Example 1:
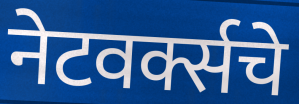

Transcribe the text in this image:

नेटवर्क्सचे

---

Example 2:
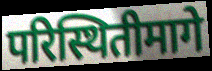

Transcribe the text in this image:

परिस्थितीमागे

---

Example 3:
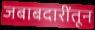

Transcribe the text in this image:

जबाबदारींतून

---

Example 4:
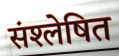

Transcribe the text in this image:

संश्लेषित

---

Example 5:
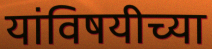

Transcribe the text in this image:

यांविषयीच्या